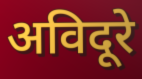
अविदूरे